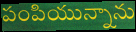
పంపియున్నాను